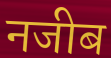
नजीब